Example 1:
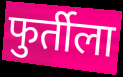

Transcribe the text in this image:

फुर्तीला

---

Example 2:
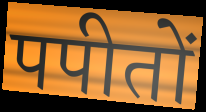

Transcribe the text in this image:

पपीतों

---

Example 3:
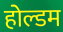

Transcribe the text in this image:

होल्डम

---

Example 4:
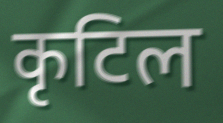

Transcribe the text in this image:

कृटिल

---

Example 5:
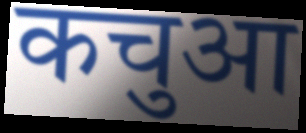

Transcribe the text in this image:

कचुआ